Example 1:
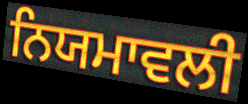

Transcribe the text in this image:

ਨਿਯਮਾਵਲੀ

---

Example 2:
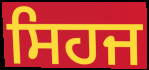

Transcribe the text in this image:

ਸਿਹਜ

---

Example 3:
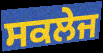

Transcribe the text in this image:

ਸਕਲੇਜ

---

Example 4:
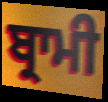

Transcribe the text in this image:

ਬ੍ਰਾਮੀ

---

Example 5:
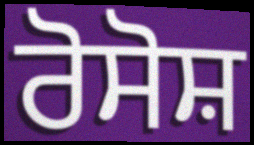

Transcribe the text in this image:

ਰੋਸੋਸ਼